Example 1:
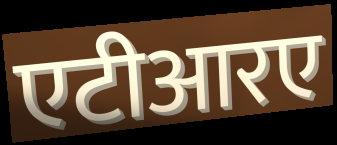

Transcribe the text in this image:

एटीआरए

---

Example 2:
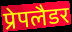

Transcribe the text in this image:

प्रेपलैडर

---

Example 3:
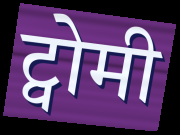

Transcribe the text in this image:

ट्वोमी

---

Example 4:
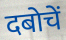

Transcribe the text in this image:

दबोचें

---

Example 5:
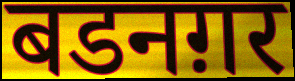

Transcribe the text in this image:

बडनग़र